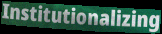
Institutionalizing